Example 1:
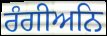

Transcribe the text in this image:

ਰੰਗੀਅਨਿ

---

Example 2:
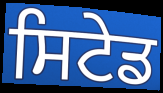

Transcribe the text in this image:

ਸਿਟੇਡ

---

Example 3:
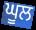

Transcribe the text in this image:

ਘੂਲ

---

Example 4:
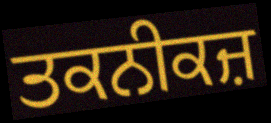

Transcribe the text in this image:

ਤਕਨੀਕਜ਼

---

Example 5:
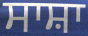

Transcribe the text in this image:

ਸਾਸ਼ਾ